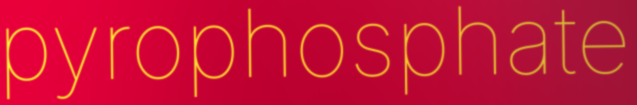
pyrophosphate